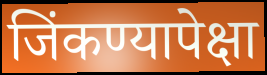
जिंकण्यापेक्षा